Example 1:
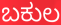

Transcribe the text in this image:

ಬಕುಲ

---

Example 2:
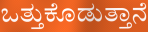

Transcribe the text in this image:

ಒತ್ತುಕೊಡುತ್ತಾನೆ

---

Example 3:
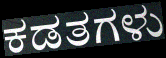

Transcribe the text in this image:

ಕಡತಗಳು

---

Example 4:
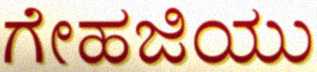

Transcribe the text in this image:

ಗೇಹಜಿಯು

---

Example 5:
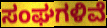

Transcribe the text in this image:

ಸಂಘಗಳಿವೆ